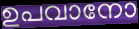
ഉപവാനോ